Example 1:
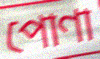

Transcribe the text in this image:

পোণা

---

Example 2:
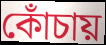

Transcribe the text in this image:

কোঁচায়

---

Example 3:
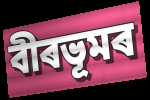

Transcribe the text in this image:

বীৰভূমৰ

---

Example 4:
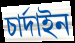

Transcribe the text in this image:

চাৰ্দাইন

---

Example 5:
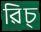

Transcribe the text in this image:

ৱিচ্